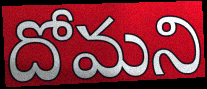
దోమని